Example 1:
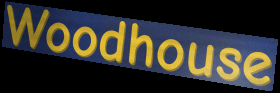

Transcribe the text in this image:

Woodhouse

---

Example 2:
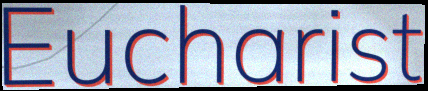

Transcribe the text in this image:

Eucharist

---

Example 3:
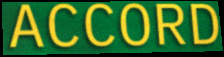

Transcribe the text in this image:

ACCORD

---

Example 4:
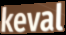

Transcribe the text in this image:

keval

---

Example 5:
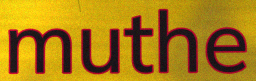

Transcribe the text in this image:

muthe